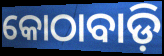
କୋଠାବାଡ଼ି